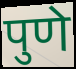
पुणे